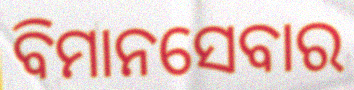
ବିମାନସେବାର